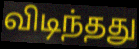
விடிந்தது